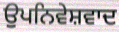
ਉਪਨਿਵੇਸ਼ਵਾਦ